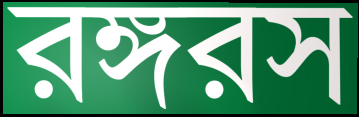
রঙ্গরস